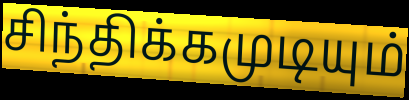
சிந்திக்கமுடியும்